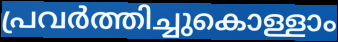
പ്രവർത്തിച്ചുകൊള്ളാം